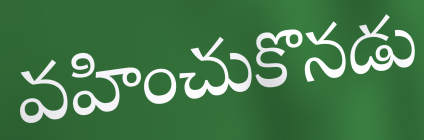
వహించుకొనడు